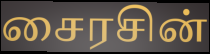
சைரசின்